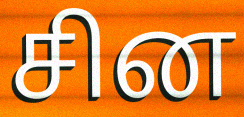
சின